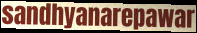
sandhyanarepawar